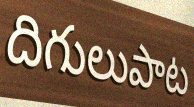
దిగులుపాట